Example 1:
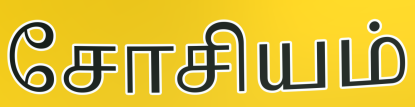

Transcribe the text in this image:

சோசியம்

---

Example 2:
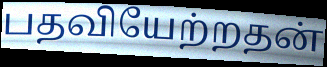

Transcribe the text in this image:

பதவியேற்றதன்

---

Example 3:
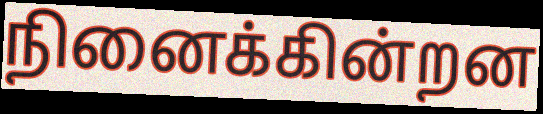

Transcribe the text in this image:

நினைக்கின்றன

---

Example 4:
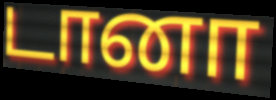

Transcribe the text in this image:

டானா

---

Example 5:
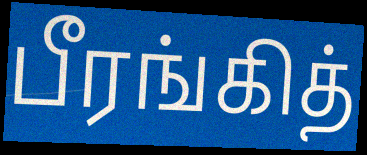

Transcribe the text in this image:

பீரங்கித்